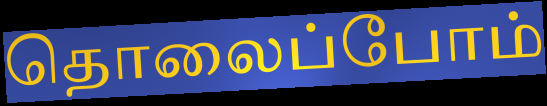
தொலைப்போம்